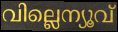
വില്ലെന്യൂവ്